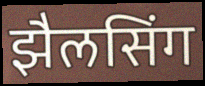
झैलसिंग